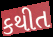
કથીત